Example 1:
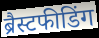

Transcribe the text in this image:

ब्रैस्टफीडिंग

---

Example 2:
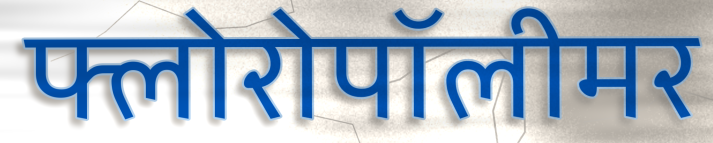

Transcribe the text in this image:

फ्लोरोपॉलीमर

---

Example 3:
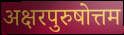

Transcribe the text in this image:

अक्षरपुरुषोत्तम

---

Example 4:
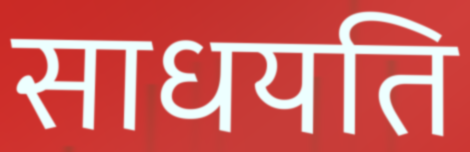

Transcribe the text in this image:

साधयति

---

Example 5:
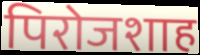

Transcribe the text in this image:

पिरोजशाह